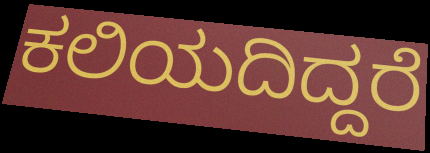
ಕಲಿಯದಿದ್ದರೆ